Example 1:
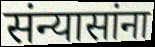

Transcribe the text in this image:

संन्यासांना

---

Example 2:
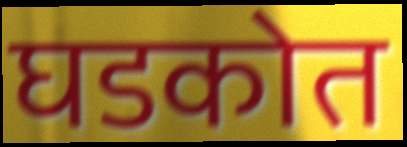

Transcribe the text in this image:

घडकोत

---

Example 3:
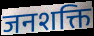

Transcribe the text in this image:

जनशक्ति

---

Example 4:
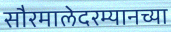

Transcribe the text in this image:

सौरमालेदरम्यानच्या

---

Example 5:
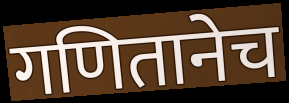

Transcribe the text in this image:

गणितानेच